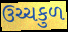
ઉચ્ચકુળ